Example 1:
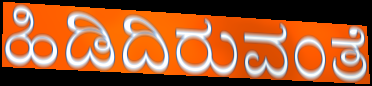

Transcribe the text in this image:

ಹಿಡಿದಿರುವಂತೆ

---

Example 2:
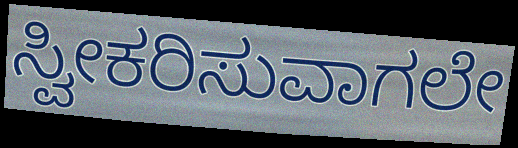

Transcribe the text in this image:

ಸ್ವೀಕರಿಸುವಾಗಲೇ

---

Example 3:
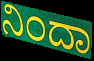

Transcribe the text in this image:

ನಿಂದಾ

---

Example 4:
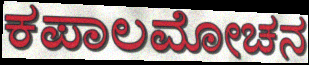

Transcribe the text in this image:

ಕಪಾಲಮೋಚನ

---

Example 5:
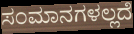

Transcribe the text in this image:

ಸಂಮಾನಗಳಲ್ಲದೆ